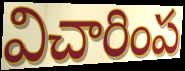
విచారింప